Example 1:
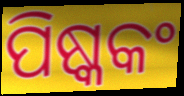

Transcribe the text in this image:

ପିଷ୍କକଂ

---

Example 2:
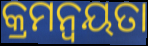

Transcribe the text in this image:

କ୍ରମନ୍ବୟତା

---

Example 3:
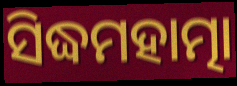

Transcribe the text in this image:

ସିଦ୍ଧମହାତ୍ମା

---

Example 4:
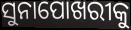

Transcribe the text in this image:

ସୁନାପୋଖରୀକୁ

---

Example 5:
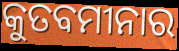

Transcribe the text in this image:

କୁତବମୀନାର